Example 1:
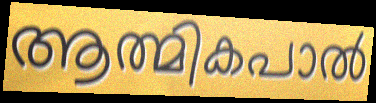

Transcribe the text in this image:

ആത്മികപാൽ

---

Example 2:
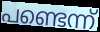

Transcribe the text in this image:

പണ്ടെന്ന്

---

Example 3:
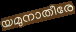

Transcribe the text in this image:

യമുനാതീരേ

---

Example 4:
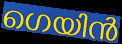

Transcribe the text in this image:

ഗെയിൻ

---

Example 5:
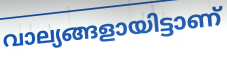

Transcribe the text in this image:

വാല്യങ്ങളായിട്ടാണ്